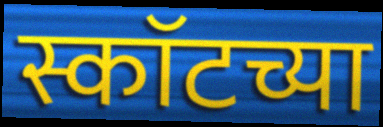
स्कॉटच्या